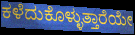
ಕಳೆದುಕೊಳ್ಳುತ್ತಾರೆಯೇ